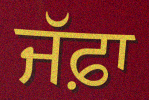
ਜੱਫ਼ਾ